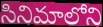
సినిమాలోని